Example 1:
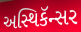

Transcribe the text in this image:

અસ્થિકૅન્સર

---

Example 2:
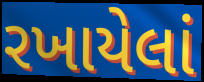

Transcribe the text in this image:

રખાયેલાં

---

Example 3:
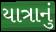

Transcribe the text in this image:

યાત્રાનું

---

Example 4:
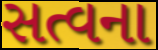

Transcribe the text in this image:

સત્વના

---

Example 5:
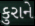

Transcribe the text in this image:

કુરાને